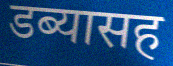
डब्यासह